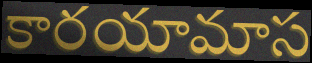
కారయామాస